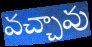
వచ్చావు